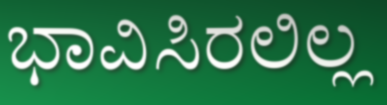
ಭಾವಿಸಿರಲಿಲ್ಲ